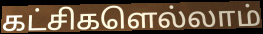
கட்சிகளெல்லாம்